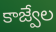
కాజ్వేల